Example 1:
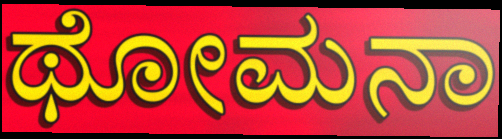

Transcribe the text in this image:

ಥೋಮನಾ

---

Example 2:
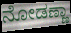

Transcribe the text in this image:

ನೋಡಣ್ಣಾ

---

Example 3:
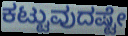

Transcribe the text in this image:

ಕಟ್ಟುವುದಷ್ಟೇ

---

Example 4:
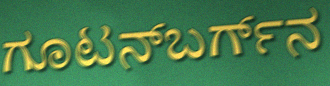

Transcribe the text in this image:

ಗೂಟನ್‌ಬರ್ಗ್‌ನ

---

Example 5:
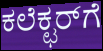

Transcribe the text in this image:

ಕಲೆಕ್ಟರ್‌ಗೆ